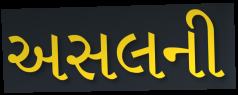
અસલની